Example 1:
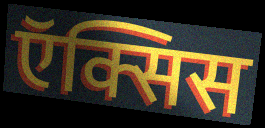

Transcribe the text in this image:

ऍक्सिस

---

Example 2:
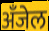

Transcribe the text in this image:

अँजेल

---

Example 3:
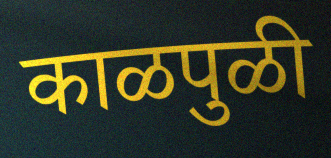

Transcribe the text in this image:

काळपुळी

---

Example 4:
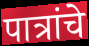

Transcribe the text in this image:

पात्रांचे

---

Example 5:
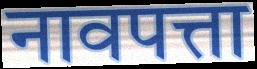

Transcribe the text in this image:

नावपत्ता